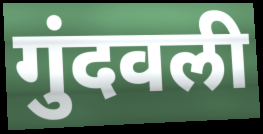
गुंदवली